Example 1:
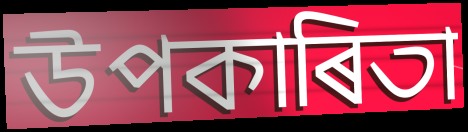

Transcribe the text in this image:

উপকাৰিতা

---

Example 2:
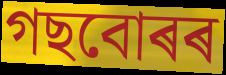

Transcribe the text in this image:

গছবোৰৰ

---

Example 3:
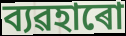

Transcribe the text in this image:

ব্যৱহাৰো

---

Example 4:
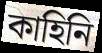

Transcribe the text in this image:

কাহিনি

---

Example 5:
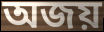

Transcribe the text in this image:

অজয়